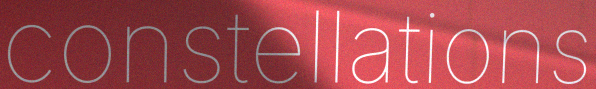
constellations